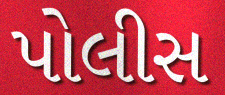
પોલીસ